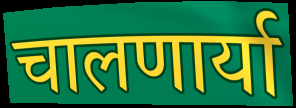
चालणार्या